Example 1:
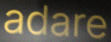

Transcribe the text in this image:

adare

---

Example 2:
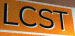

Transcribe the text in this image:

LCST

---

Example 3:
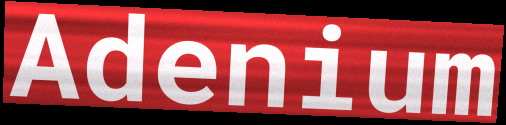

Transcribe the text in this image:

Adenium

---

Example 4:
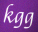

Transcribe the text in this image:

kgg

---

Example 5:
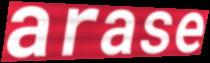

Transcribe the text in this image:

arase